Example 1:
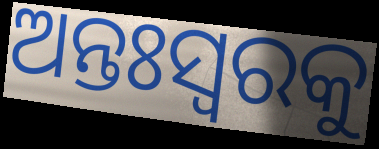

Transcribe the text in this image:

ଅନ୍ତଃସ୍ୱରକୁ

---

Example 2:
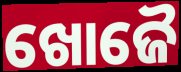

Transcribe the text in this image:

ଖୋଜୈ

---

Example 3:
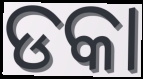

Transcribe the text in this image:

ଡକା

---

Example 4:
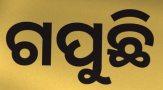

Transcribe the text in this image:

ଗପୁଛି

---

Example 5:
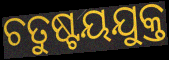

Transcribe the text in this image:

ଚତୁଷ୍ଟୟଯୁକ୍ତ